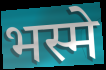
भस्मे